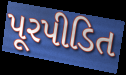
પૂરપીડિત